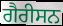
ਗੈਰੀਸਨ